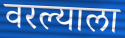
वरल्याला